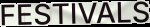
FESTIVALS